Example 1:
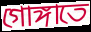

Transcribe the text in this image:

গোঙ্গাতে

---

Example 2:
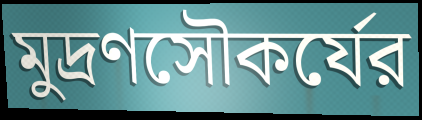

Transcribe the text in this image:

মুদ্রণসৌকর্যের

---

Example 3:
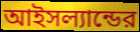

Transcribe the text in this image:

আইসল্যান্ডের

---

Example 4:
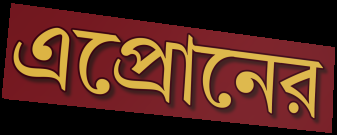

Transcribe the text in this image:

এপ্রোনের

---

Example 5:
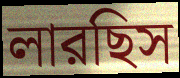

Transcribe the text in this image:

লারছিস